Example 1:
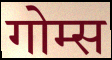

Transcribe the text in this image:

गोम्स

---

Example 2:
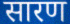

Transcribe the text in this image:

सारण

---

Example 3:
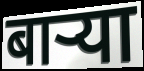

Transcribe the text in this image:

बाऱ्या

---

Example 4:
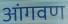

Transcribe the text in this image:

आंगवण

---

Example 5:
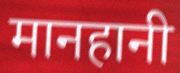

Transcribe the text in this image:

मानहानी